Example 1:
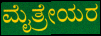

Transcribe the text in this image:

ಮೈತ್ರೇಯರ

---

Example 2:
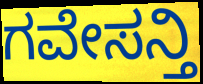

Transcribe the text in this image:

ಗವೇಸನ್ತಿ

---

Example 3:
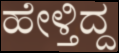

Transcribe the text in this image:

ಹೇಳ್ತಿದ್ದ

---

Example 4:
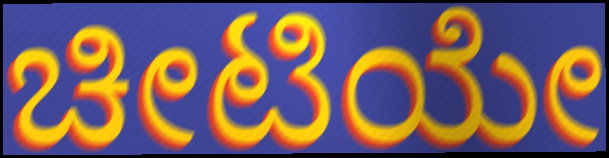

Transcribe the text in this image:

ಚೀಟಿಯೇ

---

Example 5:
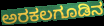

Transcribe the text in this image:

ಅರಕಲಗೂಡಿನ